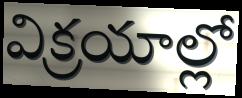
విక్రయాల్లో